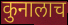
कुनालाच